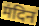
मंदिन